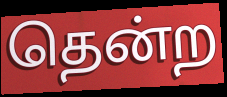
தென்ற